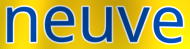
neuve